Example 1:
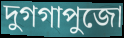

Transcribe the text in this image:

দুগগাপুজো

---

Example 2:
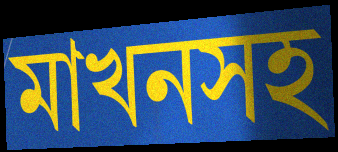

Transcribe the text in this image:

মাখনসহ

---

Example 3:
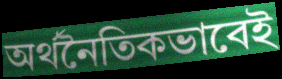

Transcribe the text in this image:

অর্থনৈতিকভাবেই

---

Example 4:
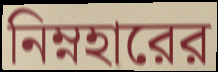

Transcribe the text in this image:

নিম্নহারের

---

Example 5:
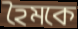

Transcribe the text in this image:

হৈমকে